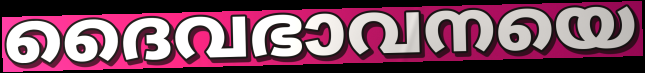
ദൈവഭാവനയെ